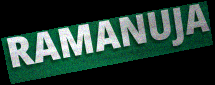
RAMANUJA